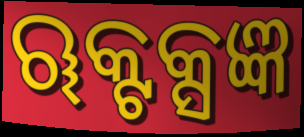
ୠକ୍ଟକ୍ସଜ୍ଞ